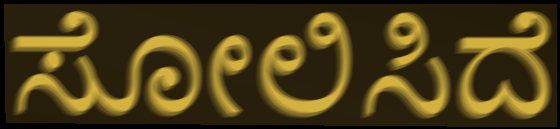
ಸೋಲಿಸಿದೆ